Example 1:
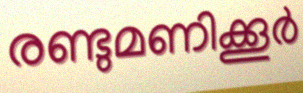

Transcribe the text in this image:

രണ്ടുമണിക്കൂർ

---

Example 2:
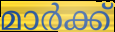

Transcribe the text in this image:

മാർക്ക്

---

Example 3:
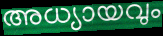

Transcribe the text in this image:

അധ്യായവും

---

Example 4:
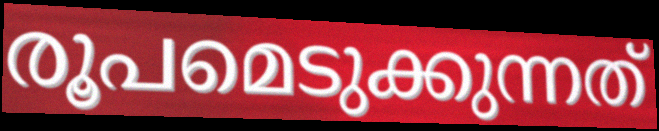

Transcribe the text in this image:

രൂപമെടുക്കുന്നത്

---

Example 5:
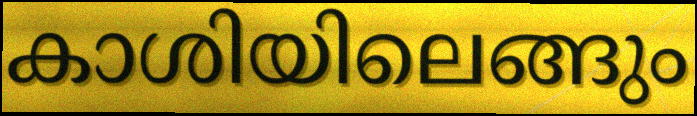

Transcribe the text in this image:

കാശിയിലെങ്ങും